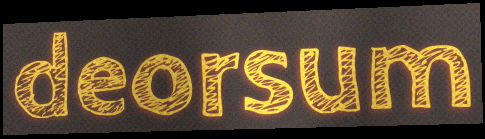
deorsum